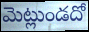
మెట్లుండదో